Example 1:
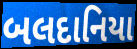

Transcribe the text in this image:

બલદાનિયા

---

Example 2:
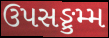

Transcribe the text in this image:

ઉપસઙ્કમ્મ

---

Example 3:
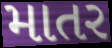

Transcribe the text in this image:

માતર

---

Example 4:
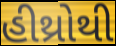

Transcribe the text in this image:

હીથ્રોથી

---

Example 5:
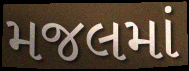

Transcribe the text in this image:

મજલમાં